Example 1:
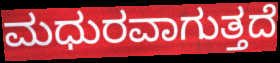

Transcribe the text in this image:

ಮಧುರವಾಗುತ್ತದೆ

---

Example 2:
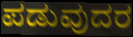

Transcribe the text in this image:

ಪಡುವುದರ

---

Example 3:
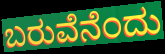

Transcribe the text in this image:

ಬರುವೆನೆಂದು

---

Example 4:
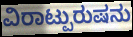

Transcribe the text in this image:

ವಿರಾಟ್ಪುರುಷನು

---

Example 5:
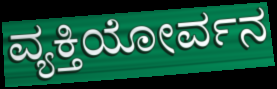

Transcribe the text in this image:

ವ್ಯಕ್ತಿಯೋರ್ವನ